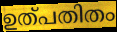
ഉത്പതിതം